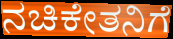
ನಚಿಕೇತನಿಗೆ